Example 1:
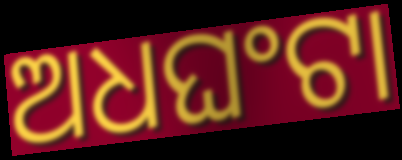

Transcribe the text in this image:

ଅଧଘଂଟା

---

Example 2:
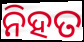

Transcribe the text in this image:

ନିହତ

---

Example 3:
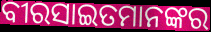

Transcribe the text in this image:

ବୀରସାଇତମାନଙ୍କର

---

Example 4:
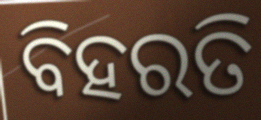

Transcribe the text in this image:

ବିହରତି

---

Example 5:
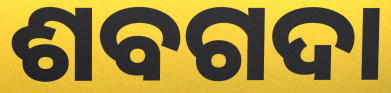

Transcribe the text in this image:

ଶବଗଦା